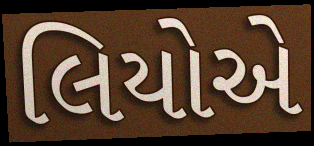
લિયોએ